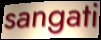
sangati